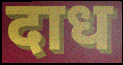
दाध